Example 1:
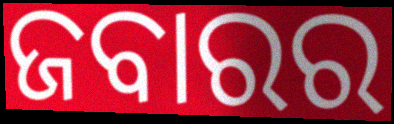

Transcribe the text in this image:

ଜବାରର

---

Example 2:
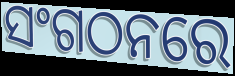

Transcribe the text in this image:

ସଂଗଠନରେ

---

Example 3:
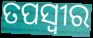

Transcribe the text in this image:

ତପସ୍ଵୀର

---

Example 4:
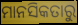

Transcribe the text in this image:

ମାନସିକତାରୁ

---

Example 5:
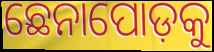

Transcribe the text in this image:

ଛେନାପୋଡ଼କୁ